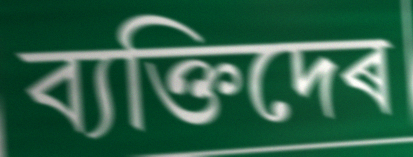
ব্যক্তিদেৰ